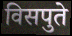
विसपुते